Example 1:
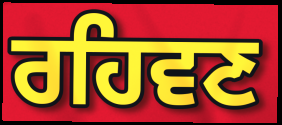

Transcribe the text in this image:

ਰਹਿਵਣ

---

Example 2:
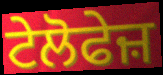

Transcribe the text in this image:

ਟੇਲੋਫੇਜ਼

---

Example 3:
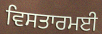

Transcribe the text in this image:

ਵਿਸਤਾਰਮਈ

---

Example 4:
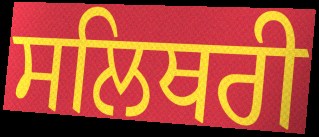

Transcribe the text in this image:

ਸਲਿਥਰੀ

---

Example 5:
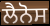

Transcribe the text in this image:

ਲੈਨੋਸ